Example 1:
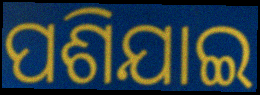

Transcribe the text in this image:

ପଶିଯାଇ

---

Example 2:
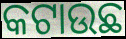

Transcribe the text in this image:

କଟାଉଛ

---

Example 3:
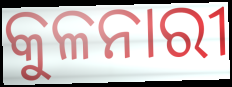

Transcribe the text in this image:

କୁଳନାରୀ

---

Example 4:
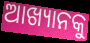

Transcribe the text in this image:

ଆଖ୍ୟାନକୁ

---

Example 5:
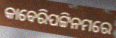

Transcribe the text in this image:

କାବେରିପଟ୍ଟିନମରେ